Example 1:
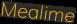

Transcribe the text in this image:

Mealime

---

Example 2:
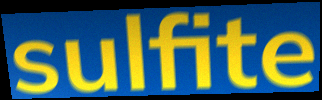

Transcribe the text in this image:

sulfite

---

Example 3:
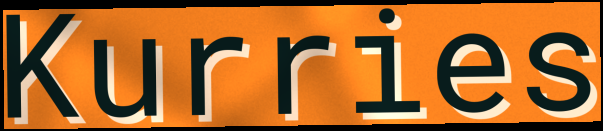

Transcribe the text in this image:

Kurries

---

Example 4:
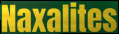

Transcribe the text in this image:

Naxalites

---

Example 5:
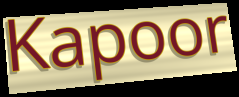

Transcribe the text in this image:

Kapoor